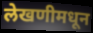
लेखणीमधून